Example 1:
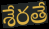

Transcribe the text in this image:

శేరతే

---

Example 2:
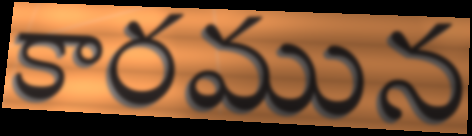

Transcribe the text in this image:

కారమున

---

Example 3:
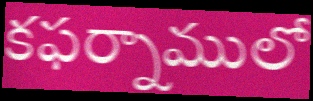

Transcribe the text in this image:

కఫర్నాములో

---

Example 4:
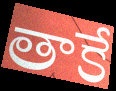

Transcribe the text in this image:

తాకే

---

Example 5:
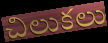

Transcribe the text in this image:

చిలుకలు